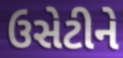
ઉસેટીને